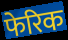
फेरिक